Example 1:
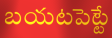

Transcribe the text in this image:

బయటపెట్టే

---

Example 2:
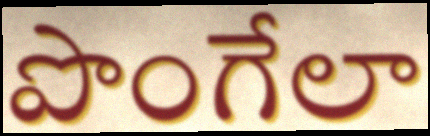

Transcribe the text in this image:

పొంగేలా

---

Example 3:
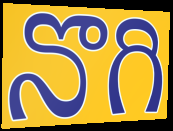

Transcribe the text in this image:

నొగి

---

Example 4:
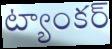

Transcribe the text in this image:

ట్యాంకర్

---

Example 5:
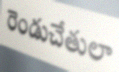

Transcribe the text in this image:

రెండుచేతులా